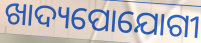
ଖାଦ୍ୟପୋଯୋଗୀ